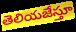
తెలియజేస్తూ